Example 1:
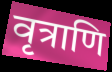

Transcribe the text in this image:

वृत्राणि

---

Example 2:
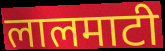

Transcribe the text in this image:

लालमाटी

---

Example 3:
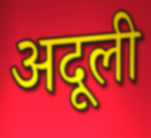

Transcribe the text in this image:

अदूली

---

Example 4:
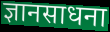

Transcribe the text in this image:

ज्ञानसाधना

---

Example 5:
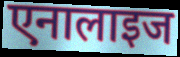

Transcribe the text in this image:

एनालाइज